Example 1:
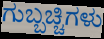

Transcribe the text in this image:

ಗುಬ್ಬಚ್ಚಿಗಳು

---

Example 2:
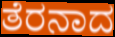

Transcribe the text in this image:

ತೆರನಾದ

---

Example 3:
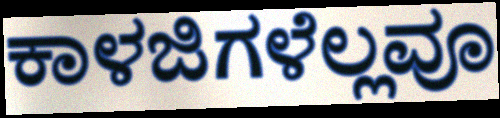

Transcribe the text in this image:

ಕಾಳಜಿಗಳೆಲ್ಲವೂ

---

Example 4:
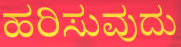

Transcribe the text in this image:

ಹರಿಸುವುದು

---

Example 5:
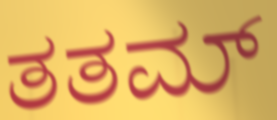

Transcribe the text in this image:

ತತಮ್